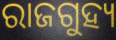
ରାଜଗୁହ୍ୟ